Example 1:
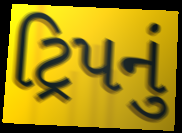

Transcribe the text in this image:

ટ્રિપનું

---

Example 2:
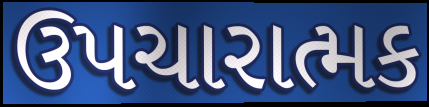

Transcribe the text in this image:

ઉપચારાત્મક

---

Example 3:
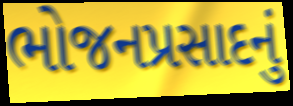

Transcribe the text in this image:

ભોજનપ્રસાદનું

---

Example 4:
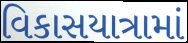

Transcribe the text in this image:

વિકાસયાત્રામાં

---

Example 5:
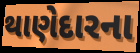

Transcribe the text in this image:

થાણેદારના